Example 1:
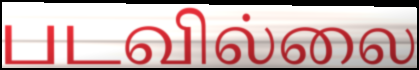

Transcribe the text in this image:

படவில்லை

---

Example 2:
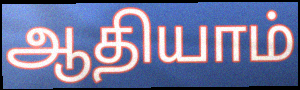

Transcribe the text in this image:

ஆதியாம்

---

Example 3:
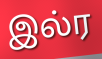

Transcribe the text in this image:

இல்ர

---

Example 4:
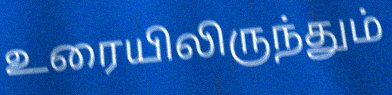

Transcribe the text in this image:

உரையிலிருந்தும்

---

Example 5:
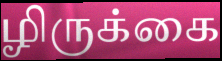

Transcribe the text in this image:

ழிருக்கை